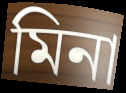
মিনা